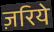
ज़रिये